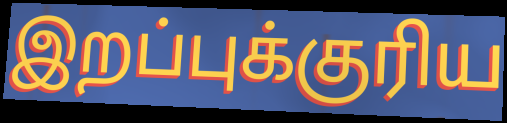
இறப்புக்குரிய